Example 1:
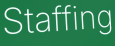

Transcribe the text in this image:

Staffing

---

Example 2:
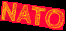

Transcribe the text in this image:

NATO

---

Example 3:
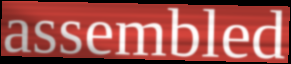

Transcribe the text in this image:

assembled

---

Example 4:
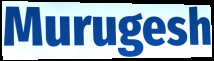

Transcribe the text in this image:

Murugesh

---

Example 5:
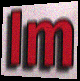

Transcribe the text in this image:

Im